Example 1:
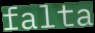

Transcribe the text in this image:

falta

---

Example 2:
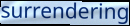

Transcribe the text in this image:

surrendering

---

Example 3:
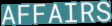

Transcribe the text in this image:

AFFAIRS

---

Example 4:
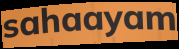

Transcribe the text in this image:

sahaayam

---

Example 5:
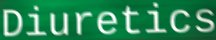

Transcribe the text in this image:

Diuretics